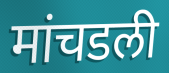
मांचडली